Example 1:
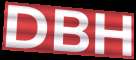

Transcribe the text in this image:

DBH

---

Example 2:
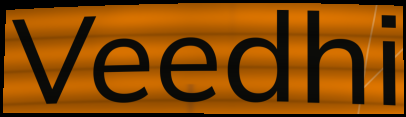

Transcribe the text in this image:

Veedhi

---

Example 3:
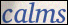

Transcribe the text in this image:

calms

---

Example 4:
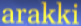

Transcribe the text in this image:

arakki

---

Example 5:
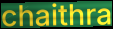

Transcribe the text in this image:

chaithra